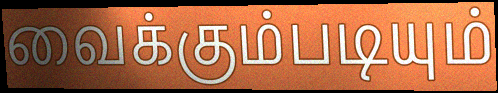
வைக்கும்படியும்